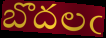
బొదలఁ